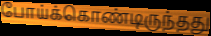
போய்க்கொண்டிருந்தது